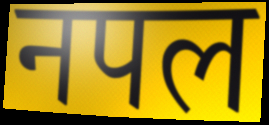
नपल